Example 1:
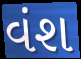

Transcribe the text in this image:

વંશ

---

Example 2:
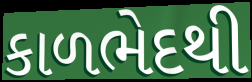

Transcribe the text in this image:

કાળભેદથી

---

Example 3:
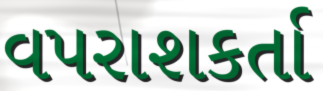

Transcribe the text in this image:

વપરાશકર્તા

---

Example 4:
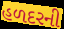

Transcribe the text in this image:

હળદરની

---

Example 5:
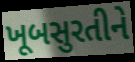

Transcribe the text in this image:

ખૂબસુરતીને